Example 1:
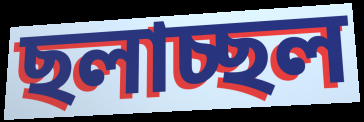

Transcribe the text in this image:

ছলাচ্ছল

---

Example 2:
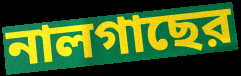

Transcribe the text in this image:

নালগাছের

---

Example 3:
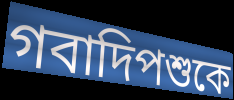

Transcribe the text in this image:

গবাদিপশুকে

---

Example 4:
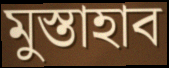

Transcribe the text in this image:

মুস্তাহাব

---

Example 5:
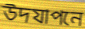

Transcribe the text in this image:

উদযাপনে